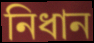
নিধান